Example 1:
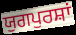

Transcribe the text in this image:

ਯੁਗਪੁਰਸ਼ਾਂ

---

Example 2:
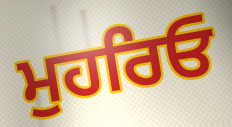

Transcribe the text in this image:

ਮੁਹਰਿਓ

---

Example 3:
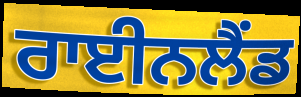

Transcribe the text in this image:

ਰਾਈਨਲੈਂਡ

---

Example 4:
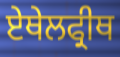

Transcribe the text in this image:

ਏਥੇਲਫ੍ਰੀਥ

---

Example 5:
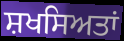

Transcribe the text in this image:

ਸ਼ਖਸਿਅਤਾਂ